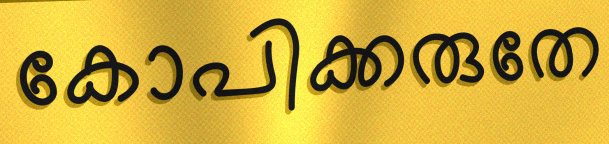
കോപിക്കരുതേ